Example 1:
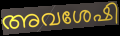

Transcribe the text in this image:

അവശേഷി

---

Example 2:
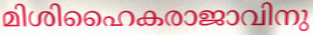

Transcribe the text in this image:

മിശിഹൈകരാജാവിനു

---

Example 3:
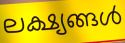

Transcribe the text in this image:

ലക്ഷ്യങ്ങൾ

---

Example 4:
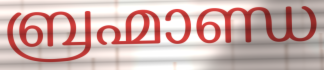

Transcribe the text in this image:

ബ്രഹ്മാണ്ഡ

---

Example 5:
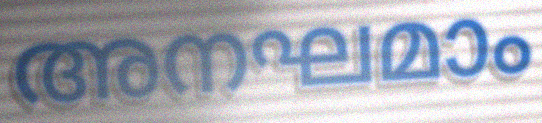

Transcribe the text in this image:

അനഘമാം